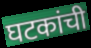
घटकांची